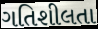
ગતિશીલતા